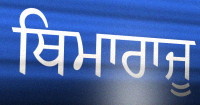
ਥਿਮਾਰਾਜੂ